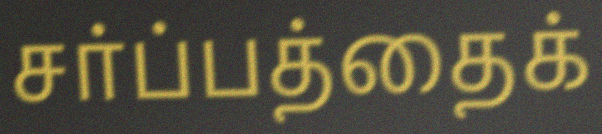
சர்ப்பத்தைக்